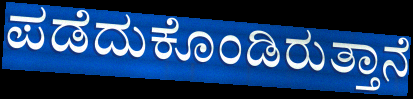
ಪಡೆದುಕೊಂಡಿರುತ್ತಾನೆ